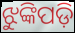
ଝୁଙ୍କିପଡ଼ି